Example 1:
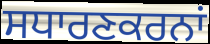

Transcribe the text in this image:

ਸਧਾਰਣਕਰਨਾਂ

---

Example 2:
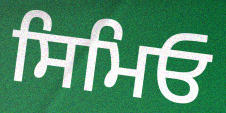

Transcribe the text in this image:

ਸਿਮਿਓ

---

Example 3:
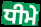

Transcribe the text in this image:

ਧੀਮੇ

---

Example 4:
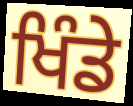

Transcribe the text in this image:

ਖਿੰਡੇ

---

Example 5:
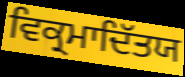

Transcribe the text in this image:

ਵਿਕ੍ਰਮਾਦਿੱਤਯ